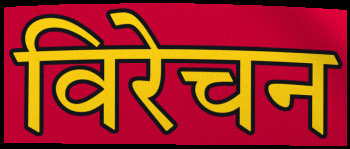
विरेचन